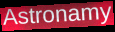
Astronamy